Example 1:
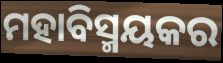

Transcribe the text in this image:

ମହାବିସ୍ମୟକର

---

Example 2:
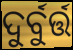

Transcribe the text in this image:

ଦୁର୍ବୁର୍ତ୍ତ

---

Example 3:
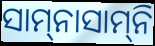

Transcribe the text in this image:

ସାମ୍‍ନାସାମ୍‍ନି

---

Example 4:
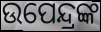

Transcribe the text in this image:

ଉପେନ୍ଦ୍ରଙ୍କ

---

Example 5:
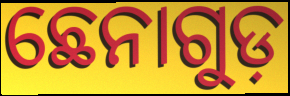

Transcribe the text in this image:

ଛେନାଗୁଡ଼